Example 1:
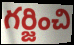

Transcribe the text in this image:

గర్జించి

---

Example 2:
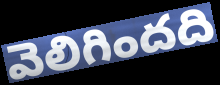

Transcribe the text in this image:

వెలిగిందది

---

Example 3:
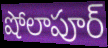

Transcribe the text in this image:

షోలాపూర్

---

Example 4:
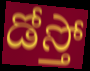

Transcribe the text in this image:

డోస్తో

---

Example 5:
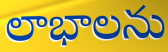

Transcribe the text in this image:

లాభాలను